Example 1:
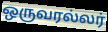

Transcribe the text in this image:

ஒருவரல்லர்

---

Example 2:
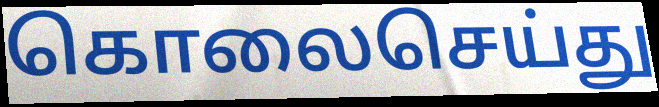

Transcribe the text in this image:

கொலைசெய்து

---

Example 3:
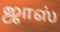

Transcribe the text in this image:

ஜாஸ்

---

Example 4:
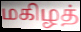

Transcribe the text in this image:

மகிழத்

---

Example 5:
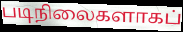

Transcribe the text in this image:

படிநிலைகளாகப்